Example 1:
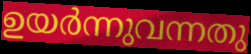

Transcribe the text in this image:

ഉയർന്നുവന്നതു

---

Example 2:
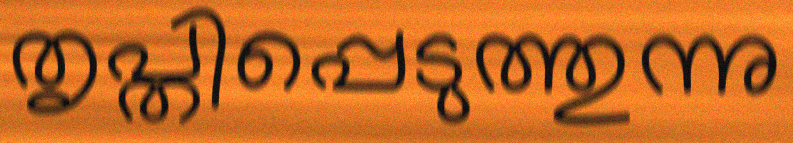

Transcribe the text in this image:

തൃപ്തിപ്പെടുത്തുന്നു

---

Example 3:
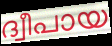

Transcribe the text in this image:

ദ്വീപായ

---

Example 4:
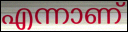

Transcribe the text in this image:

എന്നാണ്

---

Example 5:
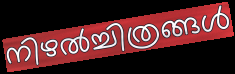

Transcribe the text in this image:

നിഴൽച്ചിത്രങ്ങൾ